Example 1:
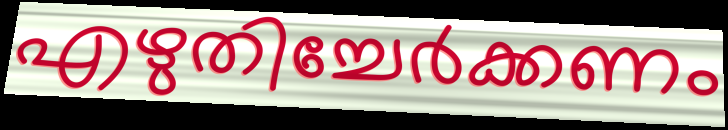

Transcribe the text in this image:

എഴുതിച്ചേർക്കണം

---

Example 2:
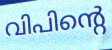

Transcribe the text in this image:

വിപിന്റെ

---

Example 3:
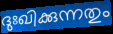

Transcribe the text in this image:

ദുഃഖിക്കുന്നതും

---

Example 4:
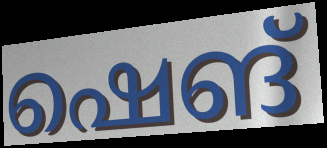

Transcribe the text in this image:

ഷെങ്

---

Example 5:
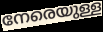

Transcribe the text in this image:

നേരെയുള്ള